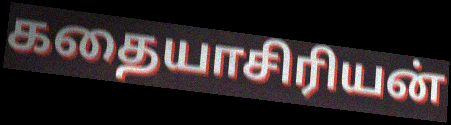
கதையாசிரியன்